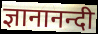
ज्ञानानन्दी